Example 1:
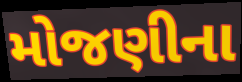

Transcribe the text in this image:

મોજણીના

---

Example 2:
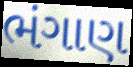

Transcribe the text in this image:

ભંગાણ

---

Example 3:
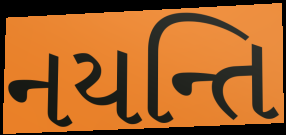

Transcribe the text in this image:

નયન્તિ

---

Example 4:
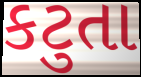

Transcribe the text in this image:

કટુતા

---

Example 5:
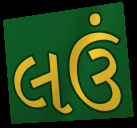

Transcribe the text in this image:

લઉં